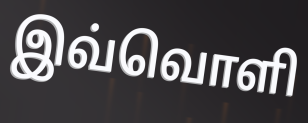
இவ்வொளி